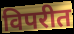
विपरीत